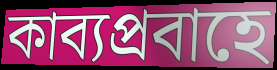
কাব্যপ্রবাহে